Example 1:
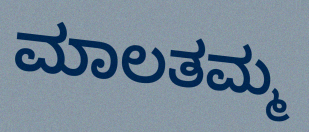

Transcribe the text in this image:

ಮಾಲತಮ್ಮ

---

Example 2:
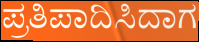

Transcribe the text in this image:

ಪ್ರತಿಪಾದಿಸಿದಾಗ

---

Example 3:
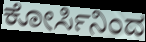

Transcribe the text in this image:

ಕೋರ್ಸಿನಿಂದ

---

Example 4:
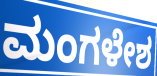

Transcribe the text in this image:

ಮಂಗಳೇಶ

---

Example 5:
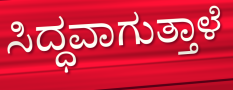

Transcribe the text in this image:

ಸಿದ್ಧವಾಗುತ್ತಾಳೆ